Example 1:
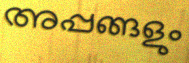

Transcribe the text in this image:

അപ്പങ്ങളും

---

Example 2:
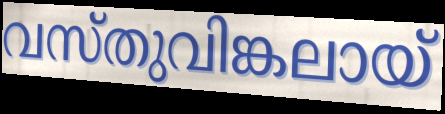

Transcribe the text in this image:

വസ്തുവിങ്കലായ്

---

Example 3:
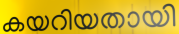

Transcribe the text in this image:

കയറിയതായി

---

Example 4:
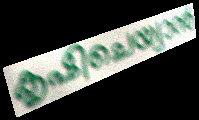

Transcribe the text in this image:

കൃഷിചെയ്വാൻ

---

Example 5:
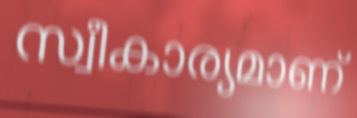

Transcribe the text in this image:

സ്വീകാര്യമാണ്